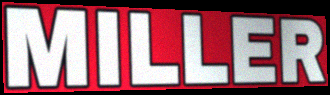
MILLER